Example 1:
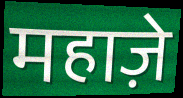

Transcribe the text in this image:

महाज़े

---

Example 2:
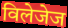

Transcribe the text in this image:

विलेजेज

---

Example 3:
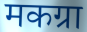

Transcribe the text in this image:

मकग्रा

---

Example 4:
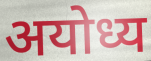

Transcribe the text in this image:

अयोध्य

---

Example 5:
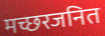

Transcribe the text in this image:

मच्छरजनित